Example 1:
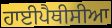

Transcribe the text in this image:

ਹਾਈਪੈਥੀਸੀਆ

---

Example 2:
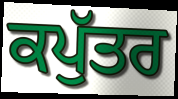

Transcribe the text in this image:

ਕਪੁੱਤਰ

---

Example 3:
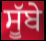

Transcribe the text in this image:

ਸੂੱਬੇ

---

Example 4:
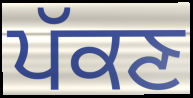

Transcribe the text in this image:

ਪੱਕਣ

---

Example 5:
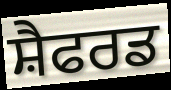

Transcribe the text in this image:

ਸ਼ੈਫਰਡ